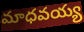
మాధవయ్య